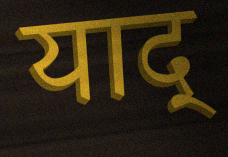
याद्